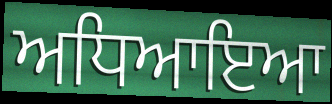
ਅਧਿਆਇਆ